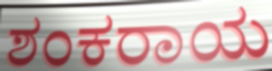
ಶಂಕರಾಯ